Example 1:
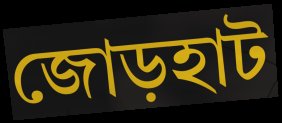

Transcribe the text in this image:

জোড়হাট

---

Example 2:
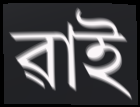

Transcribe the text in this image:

ৱাই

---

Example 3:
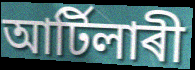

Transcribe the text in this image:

আৰ্টিলাৰী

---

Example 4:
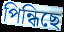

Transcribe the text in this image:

পিন্ধিছে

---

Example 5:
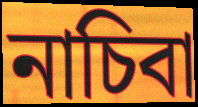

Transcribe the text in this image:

নাচিবা